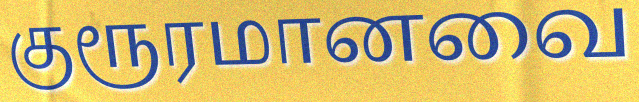
குரூரமானவை